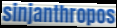
sinjanthropos